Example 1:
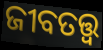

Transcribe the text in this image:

ଜୀବତତ୍ତ୍ୱ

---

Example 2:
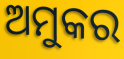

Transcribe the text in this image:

ଅମୁକର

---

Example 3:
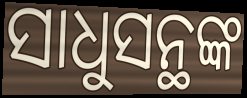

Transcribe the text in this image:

ସାଧୁସନ୍ଥଙ୍କ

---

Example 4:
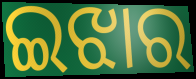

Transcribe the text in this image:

ଇଝାର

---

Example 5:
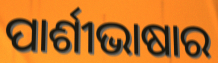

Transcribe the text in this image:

ପାର୍ଶୀଭାଷାର